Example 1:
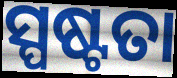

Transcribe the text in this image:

ସ୍ପଷ୍ଟତା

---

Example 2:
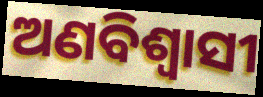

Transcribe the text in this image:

ଅଣବିଶ୍ୱାସୀ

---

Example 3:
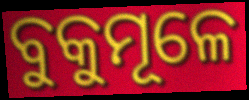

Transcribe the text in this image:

ବୁକୁମୂଳେ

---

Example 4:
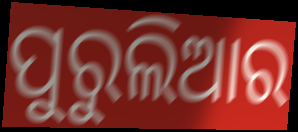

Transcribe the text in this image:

ପୁରୁଲିଆର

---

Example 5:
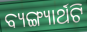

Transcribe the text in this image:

ବ୍ୟଙ୍ଗ୍ୟାର୍ଥଟି